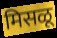
मिसळू